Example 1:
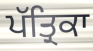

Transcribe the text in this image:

ਪੱਤ੍ਰਿਕਾ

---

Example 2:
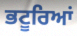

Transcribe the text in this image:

ਭਟੂਰਿਆਂ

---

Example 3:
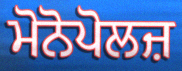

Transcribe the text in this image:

ਮੋਨੋਪੋਲਜ਼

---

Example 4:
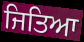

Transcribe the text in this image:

ਜਿਤਿਆ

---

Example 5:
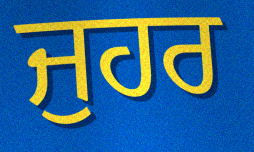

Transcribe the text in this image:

ਜੁਹਰ